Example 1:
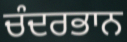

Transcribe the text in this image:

ਚੰਦਰਭਾਨ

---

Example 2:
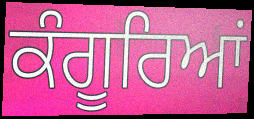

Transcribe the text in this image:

ਕੰਗੂਰਿਆਂ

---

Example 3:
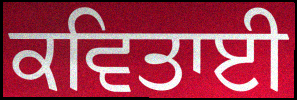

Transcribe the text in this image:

ਕਵਿਤਾਈ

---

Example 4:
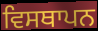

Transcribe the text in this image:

ਵਿਸਥਾਪਨ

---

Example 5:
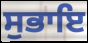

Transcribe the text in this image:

ਸੁਭਾਇ